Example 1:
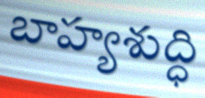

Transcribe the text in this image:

బాహ్యశుద్ధి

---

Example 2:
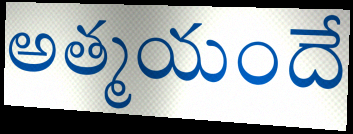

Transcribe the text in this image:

అత్మయందే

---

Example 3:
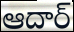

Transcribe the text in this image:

ఆదార్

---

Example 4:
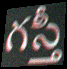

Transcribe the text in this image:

గస్తీ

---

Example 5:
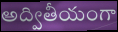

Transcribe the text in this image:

అద్వితీయంగా